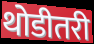
थोडीतरी